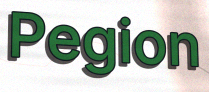
Pegion